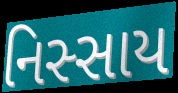
નિસ્સાય